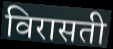
विरासती